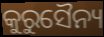
କୁରୁସୈନ୍ୟ